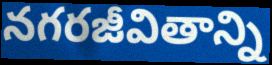
నగరజీవితాన్ని